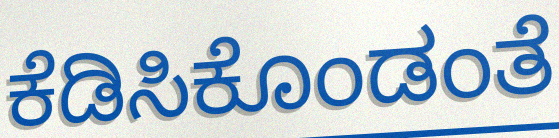
ಕೆಡಿಸಿಕೊಂಡಂತೆ